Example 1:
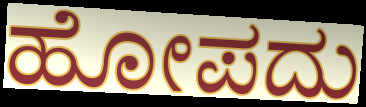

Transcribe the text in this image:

ಹೋಪದು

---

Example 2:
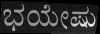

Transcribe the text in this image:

ಭಯೇಷು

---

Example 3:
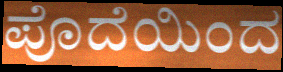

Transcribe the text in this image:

ಪೊದೆಯಿಂದ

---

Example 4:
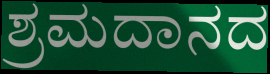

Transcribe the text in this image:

ಶ್ರಮದಾನದ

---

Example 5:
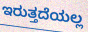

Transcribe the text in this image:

ಇರುತ್ತದೆಯಲ್ಲ